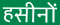
हसीनों